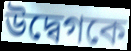
উদ্বেগকে